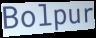
Bolpur